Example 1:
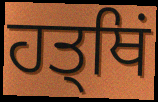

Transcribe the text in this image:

ਹਤ੍ਥਿਂ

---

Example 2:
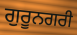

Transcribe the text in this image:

ਗੁਰੂਨਗਰੀ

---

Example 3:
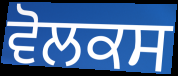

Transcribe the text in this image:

ਵੋਲਕਸ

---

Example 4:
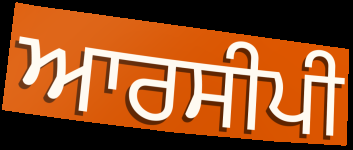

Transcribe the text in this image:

ਆਰਸੀਪੀ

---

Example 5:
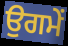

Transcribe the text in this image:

ਉਗਮੇਂ